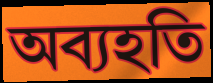
অব্যহতি